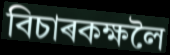
বিচাৰকক্ষলৈ